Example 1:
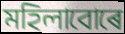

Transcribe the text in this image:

মহিলাবোৰে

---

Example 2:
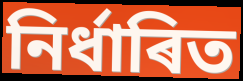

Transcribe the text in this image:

নিৰ্ধাৰিত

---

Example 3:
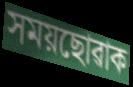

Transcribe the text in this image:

সময়ছোৱাক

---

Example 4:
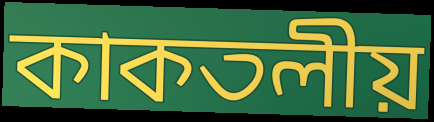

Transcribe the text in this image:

কাকতলীয়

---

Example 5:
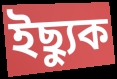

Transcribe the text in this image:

ইছ্যুক